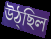
উঠ্ছিল